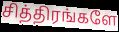
சித்திரங்களே